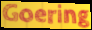
Goering